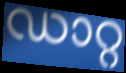
ഡാറ്റ